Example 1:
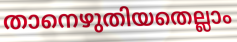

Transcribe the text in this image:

താനെഴുതിയതെല്ലാം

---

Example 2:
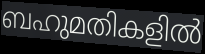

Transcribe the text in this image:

ബഹുമതികളിൽ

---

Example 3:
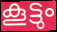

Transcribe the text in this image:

കൂട്ടും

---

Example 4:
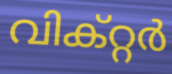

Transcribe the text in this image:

വിക്റ്റർ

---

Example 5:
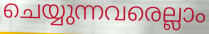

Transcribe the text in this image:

ചെയ്യുന്നവരെല്ലാം